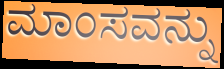
ಮಾಂಸವನ್ನು